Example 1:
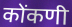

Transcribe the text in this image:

कोंकणी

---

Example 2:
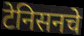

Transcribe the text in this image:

टेनिसनचे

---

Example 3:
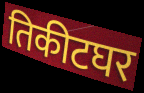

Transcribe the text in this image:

तिकीटघर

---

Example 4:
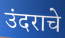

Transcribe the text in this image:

उंदराचे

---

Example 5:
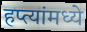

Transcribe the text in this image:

हप्त्यांमध्ये